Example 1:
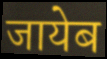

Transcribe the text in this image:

जायेब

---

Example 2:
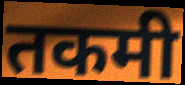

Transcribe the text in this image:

तकमी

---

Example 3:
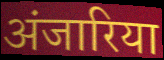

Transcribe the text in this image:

अंजारिया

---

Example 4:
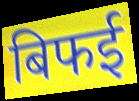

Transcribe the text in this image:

बिफई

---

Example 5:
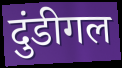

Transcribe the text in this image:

दुंडीगल